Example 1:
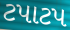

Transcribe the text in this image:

ટપાટપ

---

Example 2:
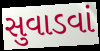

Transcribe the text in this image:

સુવાડવાં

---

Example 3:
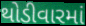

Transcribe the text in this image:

થોડીવારમાં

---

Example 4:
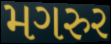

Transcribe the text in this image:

મગરુર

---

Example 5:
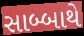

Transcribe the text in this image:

સાબ્બાથે